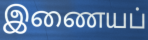
இணையப்